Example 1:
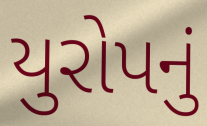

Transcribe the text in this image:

યુરોપનું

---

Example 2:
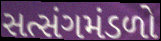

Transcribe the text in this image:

સત્સંગમંડળો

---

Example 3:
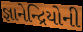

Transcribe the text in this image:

જ્ઞાનેન્દ્રિયોની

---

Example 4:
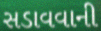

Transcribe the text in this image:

સડાવવાની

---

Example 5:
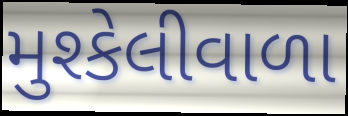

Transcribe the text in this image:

મુશ્કેલીવાળા